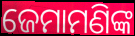
ଜେମାମଣିଙ୍କ